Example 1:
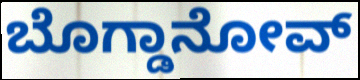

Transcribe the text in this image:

ಬೊಗ್ಡಾನೋವ್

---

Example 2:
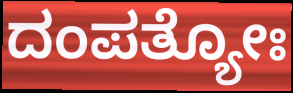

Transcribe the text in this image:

ದಂಪತ್ಯೋಃ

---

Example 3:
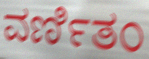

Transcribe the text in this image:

ವರ್ಣಿತಂ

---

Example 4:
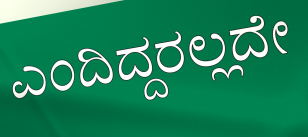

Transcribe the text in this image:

ಎಂದಿದ್ದರಲ್ಲದೇ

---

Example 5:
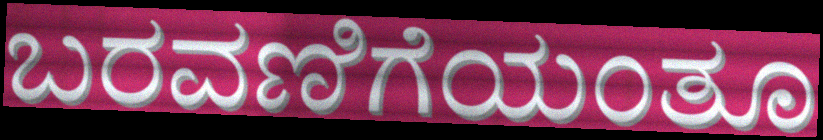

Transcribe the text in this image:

ಬರವಣಿಗೆಯಂತೂ